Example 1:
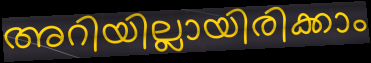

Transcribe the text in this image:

അറിയില്ലായിരിക്കാം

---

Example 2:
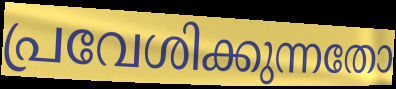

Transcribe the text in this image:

പ്രവേശിക്കുന്നതോ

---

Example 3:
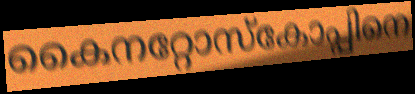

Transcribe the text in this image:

കൈനറ്റോസ്കോപ്പിനെ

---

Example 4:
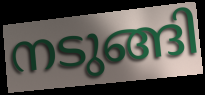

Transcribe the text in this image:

നടുങ്ങി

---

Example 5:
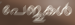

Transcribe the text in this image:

പേജുകൾ